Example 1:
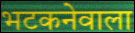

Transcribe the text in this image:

भटकनेवाला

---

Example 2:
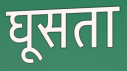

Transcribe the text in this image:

घूसता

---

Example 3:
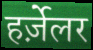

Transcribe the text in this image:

हर्ज़ेलर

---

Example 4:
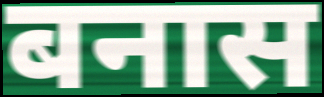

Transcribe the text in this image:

बनास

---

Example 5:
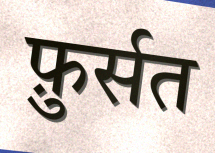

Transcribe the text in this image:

फ़ुर्सत